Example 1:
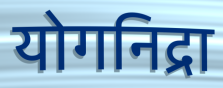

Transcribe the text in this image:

योगनिद्रा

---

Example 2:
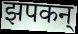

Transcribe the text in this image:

झपकन्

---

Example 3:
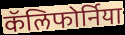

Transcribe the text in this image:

कॅलिफोर्निया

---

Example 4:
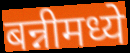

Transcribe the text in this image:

बन्नीमध्ये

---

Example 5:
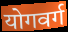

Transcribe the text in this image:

योगवर्ग